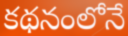
కథనంలోనే